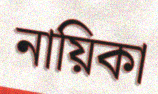
নায়িকা